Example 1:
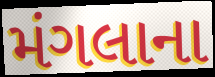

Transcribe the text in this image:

મંગલાના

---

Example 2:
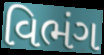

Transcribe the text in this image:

વિભંગ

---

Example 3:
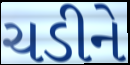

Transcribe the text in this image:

ચડીને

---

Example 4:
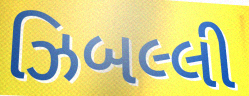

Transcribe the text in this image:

ઝિબલ્લી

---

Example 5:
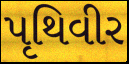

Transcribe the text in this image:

પૃથિવીર